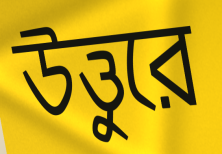
উত্তুরে